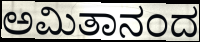
ಅಮಿತಾನಂದ